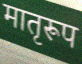
मातृरूप